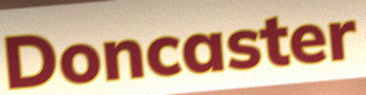
Doncaster